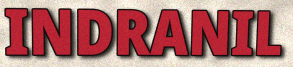
INDRANIL